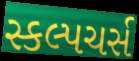
સ્કલ્પચર્સ